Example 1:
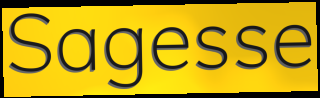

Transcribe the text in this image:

Sagesse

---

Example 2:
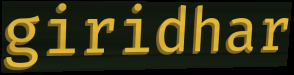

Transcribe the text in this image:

giridhar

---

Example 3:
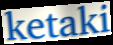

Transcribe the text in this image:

ketaki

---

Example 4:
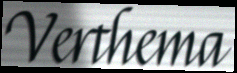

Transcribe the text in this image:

Verthema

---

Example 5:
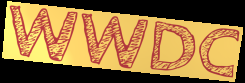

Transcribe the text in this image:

WWDC